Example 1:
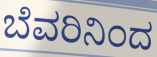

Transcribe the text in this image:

ಬೆವರಿನಿಂದ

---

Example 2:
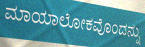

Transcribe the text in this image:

ಮಾಯಾಲೋಕವೊಂದನ್ನು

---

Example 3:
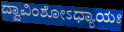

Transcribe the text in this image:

ದ್ವಾವಿಂಶೋಽಧ್ಯಾಯಃ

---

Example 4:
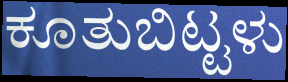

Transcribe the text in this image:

ಕೂತುಬಿಟ್ಟಳು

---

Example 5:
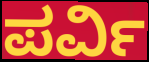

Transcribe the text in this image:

ಪರ್ವಿ